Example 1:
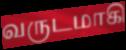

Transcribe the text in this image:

வருடமாகி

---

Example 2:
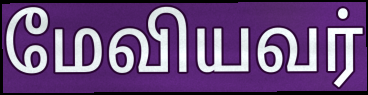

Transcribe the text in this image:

மேவியவர்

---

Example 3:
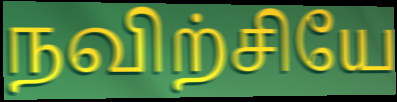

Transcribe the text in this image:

நவிற்சியே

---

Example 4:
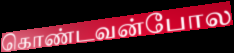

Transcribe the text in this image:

கொண்டவன்போல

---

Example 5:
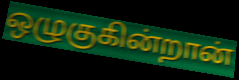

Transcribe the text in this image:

ஒழுகுகின்றான்